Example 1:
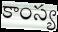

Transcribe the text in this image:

కాంస్య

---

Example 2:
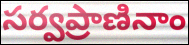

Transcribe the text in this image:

సర్వప్రాణినాం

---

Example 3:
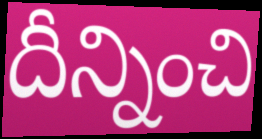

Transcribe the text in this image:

దీన్నించి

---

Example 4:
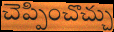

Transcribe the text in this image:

చెప్పించొచ్చు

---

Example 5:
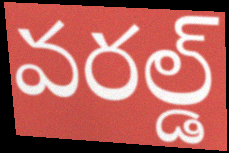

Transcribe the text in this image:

వరల్డ్